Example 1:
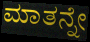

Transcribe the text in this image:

ಮಾತನ್ನೇ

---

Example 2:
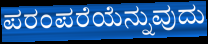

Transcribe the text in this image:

ಪರಂಪರೆಯೆನ್ನುವುದು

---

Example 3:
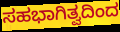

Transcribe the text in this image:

ಸಹಭಾಗಿತ್ವದಿಂದ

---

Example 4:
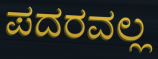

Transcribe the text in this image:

ಪದರವಲ್ಲ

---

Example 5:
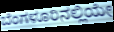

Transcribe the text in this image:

ಬೆಂಗಳೂರಿನಲ್ಲಿಯೇ